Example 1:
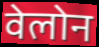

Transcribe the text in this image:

वेलोन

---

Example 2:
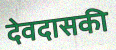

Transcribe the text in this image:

देवदासकी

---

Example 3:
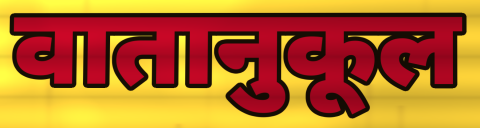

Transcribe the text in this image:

वातानुकूल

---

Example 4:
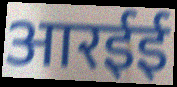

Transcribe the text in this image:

आरईई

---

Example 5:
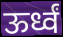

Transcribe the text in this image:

ऊर्ध्वं